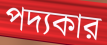
পদ্যকার